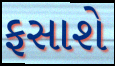
ફસાશે